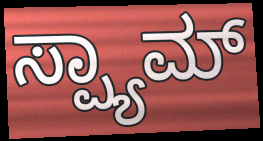
ಸ್ಪ್ಯಾಮ್